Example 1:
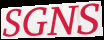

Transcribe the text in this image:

SGNS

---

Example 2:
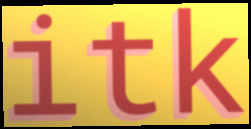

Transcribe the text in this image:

itk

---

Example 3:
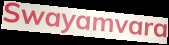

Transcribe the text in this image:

Swayamvara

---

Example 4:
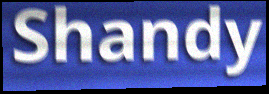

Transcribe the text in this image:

Shandy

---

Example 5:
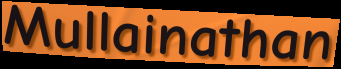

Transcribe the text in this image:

Mullainathan